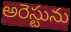
అరెస్టును